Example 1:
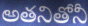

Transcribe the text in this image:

అతనితోనీ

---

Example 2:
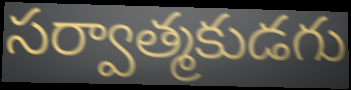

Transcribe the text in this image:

సర్వాత్మకుడగు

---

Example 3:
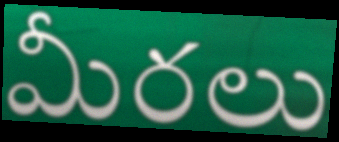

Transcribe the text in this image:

మీరలు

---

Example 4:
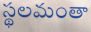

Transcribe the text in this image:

స్థలమంతా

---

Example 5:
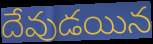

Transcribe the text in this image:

దేవుడయిన